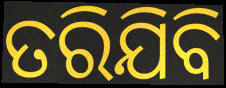
ତରିଯିବି